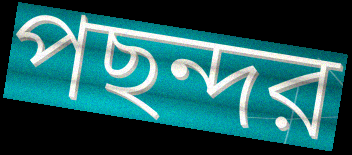
পছন্দর